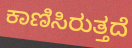
ಕಾಣಿಸಿರುತ್ತದೆ